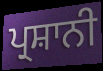
ਪ੍ਰਸ਼ਾਨੀ